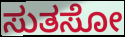
ಸುತಸೋ